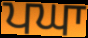
ਪਘਾ